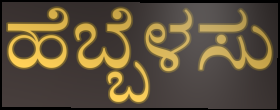
ಹೆಬ್ಬೆಳಸು